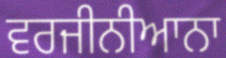
ਵਰਜੀਨੀਆਨਾ